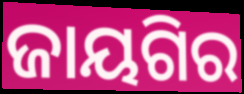
ଜାୟଗିର